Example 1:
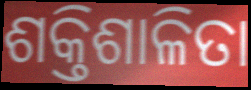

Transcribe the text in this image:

ଶକ୍ତିଶାଳିତା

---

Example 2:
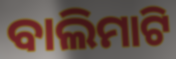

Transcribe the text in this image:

ବାଲିମାଟି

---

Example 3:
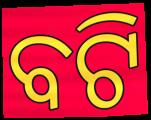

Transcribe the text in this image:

ବଟି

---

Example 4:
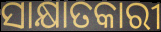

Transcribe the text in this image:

ସାକ୍ଷାତକାରୀ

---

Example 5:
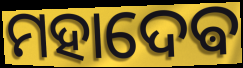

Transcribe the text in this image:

ମହାଦେଵ